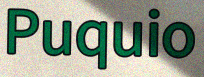
Puquio